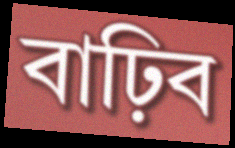
বাঢ়িব